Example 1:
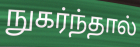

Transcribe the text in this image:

நுகர்ந்தால்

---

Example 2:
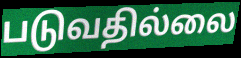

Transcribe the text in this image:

படுவதில்லை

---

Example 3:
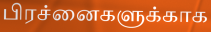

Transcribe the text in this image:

பிரச்னைகளுக்காக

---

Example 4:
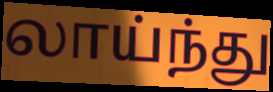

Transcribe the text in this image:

லாய்ந்து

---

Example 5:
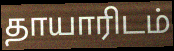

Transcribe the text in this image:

தாயாரிடம்